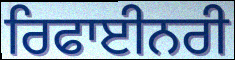
ਰਿਫਾਈਨਰੀ